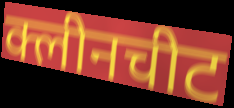
क्लीनचीट